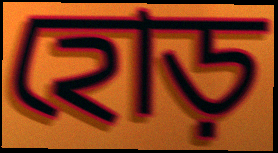
হোড়